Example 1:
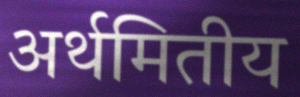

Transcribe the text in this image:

अर्थमितीय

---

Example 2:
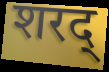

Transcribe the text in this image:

शरद्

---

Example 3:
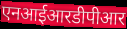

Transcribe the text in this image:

एनआईआरडीपीआर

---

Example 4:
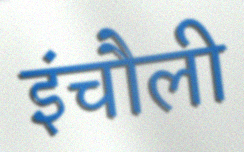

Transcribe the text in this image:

इंचौली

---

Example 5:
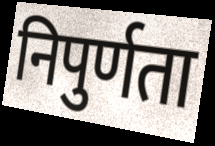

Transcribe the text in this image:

निपुर्णता